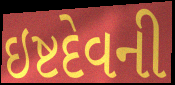
ઇષ્ટદેવની